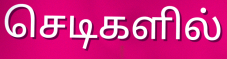
செடிகளில்